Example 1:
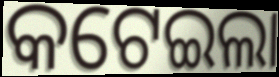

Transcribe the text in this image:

କଟେଇଲା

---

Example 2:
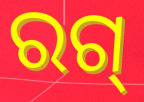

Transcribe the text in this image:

ରଗ୍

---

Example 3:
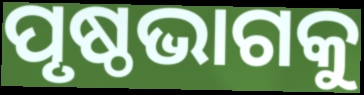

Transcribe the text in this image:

ପୃଷ୍ଠଭାଗକୁ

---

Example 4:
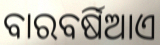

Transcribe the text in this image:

ବାରବର୍ଷିଆଏ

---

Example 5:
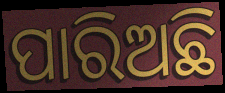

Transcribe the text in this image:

ପାରିଅଛି